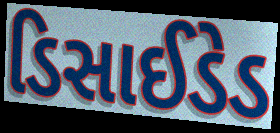
ડિસાઈડેડ